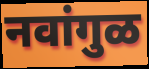
नवांगुळ